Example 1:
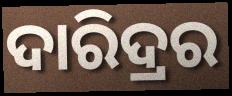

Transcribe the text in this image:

ଦାରିଦ୍ରର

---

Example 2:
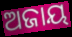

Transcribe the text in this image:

ଅଜାୟ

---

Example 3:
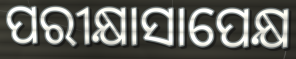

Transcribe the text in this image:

ପରୀକ୍ଷାସାପେକ୍ଷ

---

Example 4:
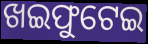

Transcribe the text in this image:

ଖଇଫୁଟେଇ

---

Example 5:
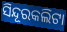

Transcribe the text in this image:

ସିନ୍ଦୂରକଲିଟା